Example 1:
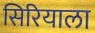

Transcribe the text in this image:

सिरियाला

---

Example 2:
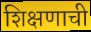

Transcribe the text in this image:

शिक्षणाची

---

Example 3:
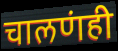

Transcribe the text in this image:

चालणंही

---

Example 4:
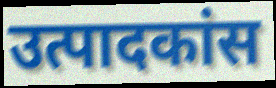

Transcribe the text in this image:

उत्पादकांस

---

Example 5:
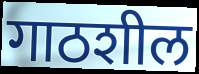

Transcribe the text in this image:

गाठशील